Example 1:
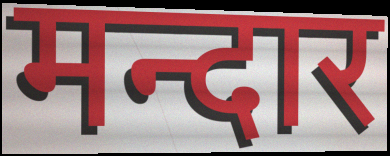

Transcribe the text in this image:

मन्दार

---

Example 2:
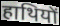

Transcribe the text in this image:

हाथियों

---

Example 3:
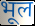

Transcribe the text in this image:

भूल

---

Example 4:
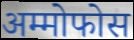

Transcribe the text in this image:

अम्मोफोस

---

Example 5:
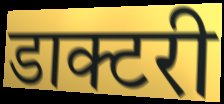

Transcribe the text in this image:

डाक्टरी